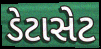
ડેટાસેટ